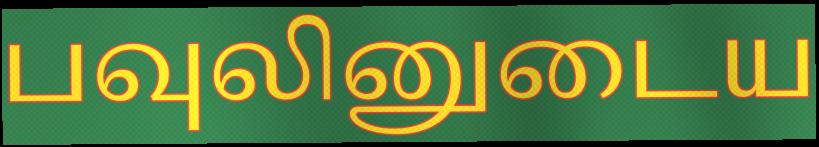
பவுலினுடைய